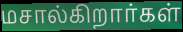
மசால்கிறார்கள்